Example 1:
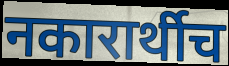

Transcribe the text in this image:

नकारार्थीच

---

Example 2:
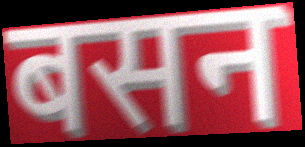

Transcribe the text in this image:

बसन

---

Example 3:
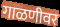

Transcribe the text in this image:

गाळणीवर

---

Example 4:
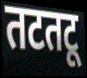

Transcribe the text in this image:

तटतटू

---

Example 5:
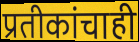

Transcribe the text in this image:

प्रतीकांचाही